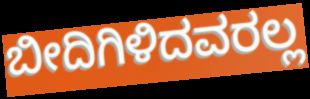
ಬೀದಿಗಿಳಿದವರಲ್ಲ